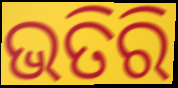
ଭତିରି